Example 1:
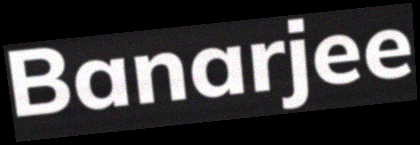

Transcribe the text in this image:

Banarjee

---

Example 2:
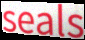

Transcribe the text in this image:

seals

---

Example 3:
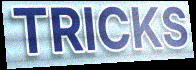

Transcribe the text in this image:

TRICKS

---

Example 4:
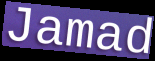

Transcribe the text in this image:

Jamad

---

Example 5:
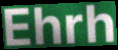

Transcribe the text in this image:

Ehrh